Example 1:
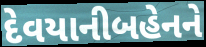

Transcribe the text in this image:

દેવયાનીબહેનને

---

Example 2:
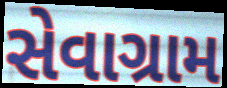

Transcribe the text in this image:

સેવાગ્રામ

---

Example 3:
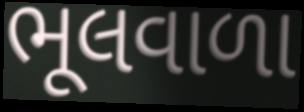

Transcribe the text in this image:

ભૂલવાળા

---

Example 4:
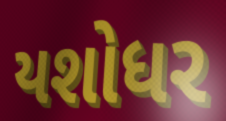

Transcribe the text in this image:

યશોધર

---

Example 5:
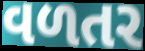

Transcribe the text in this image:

વળતર